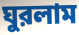
ঘুরলাম